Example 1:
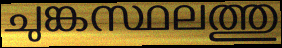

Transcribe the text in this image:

ചുങ്കസ്ഥലത്തു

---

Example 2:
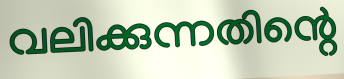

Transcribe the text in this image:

വലിക്കുന്നതിന്റെ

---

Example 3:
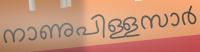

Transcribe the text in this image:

നാണുപിള്ളസാർ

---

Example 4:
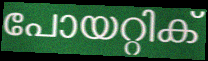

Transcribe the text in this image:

പോയറ്റിക്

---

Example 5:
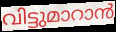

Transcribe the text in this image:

വിട്ടുമാറാൻ